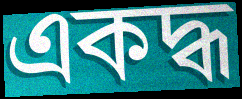
একদ্ধ